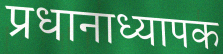
प्रधानाध्यापक